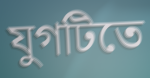
যুগটিতে